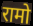
रामो